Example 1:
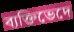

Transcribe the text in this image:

ব্যক্তিভেদে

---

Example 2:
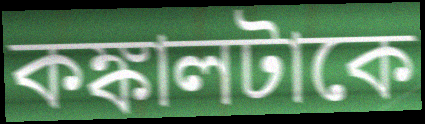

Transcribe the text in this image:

কঙ্কালটাকে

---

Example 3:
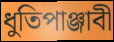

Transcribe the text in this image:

ধুতিপাঞ্জাবী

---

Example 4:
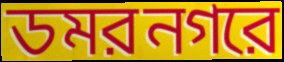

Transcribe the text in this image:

ডমরনগরে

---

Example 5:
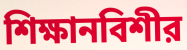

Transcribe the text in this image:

শিক্ষানবিশীর